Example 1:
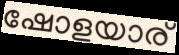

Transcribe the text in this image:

ഷോളയാര്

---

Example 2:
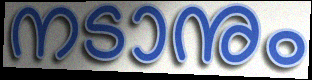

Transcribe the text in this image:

നടാനും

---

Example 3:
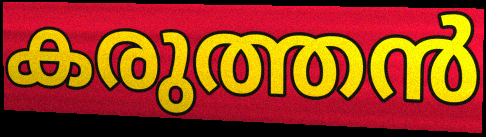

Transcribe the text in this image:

കരുത്തൻ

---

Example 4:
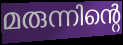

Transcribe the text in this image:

മരുന്നിന്റെ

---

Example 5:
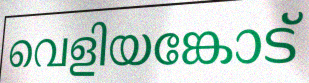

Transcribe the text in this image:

വെളിയങ്കോട്